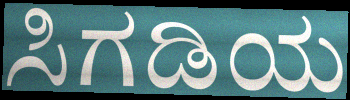
ಸಿಗಡಿಯ